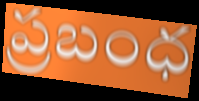
ప్రబంధ